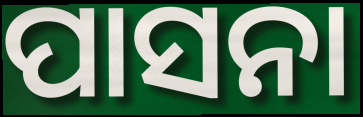
ପାସନା